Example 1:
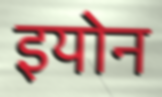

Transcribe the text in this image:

इयोन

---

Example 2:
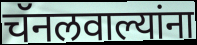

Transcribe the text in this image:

चॅनलवाल्यांना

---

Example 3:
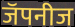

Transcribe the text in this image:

जॅपनीज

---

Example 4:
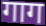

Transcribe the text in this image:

गाग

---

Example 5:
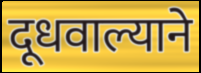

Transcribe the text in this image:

दूधवाल्याने